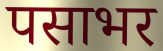
पसाभर